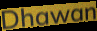
Dhawan